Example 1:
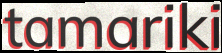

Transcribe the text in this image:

tamariki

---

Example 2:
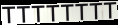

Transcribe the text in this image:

TTTTTTTT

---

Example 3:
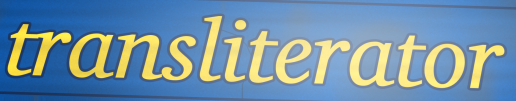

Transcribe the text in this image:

transliterator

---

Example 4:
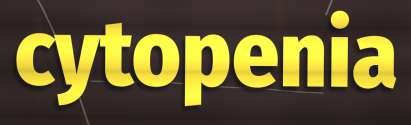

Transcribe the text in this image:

cytopenia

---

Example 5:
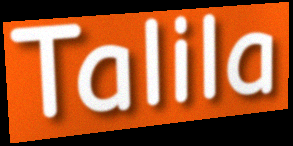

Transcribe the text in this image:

Talila